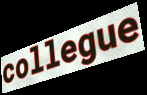
collegue